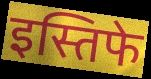
इस्तिफे